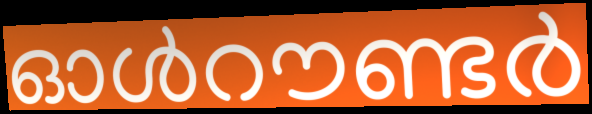
ഓൾറൗണ്ടർ